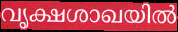
വൃക്ഷശാഖയിൽ